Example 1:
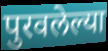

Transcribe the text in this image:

पुरवलेल्या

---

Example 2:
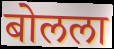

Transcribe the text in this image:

बोलला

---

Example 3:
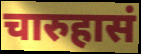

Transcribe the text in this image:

चारुहासं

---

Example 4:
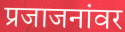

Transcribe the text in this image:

प्रजाजनांवर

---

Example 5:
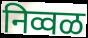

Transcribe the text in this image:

निव्‍वळ